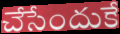
చేసేందుకే